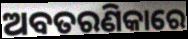
ଅବତରଣିକାରେ